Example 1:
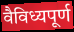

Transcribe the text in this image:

वैविध्यपूर्ण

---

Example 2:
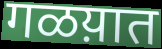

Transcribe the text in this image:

गळय़ात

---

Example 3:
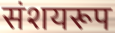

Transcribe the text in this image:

संशयरूप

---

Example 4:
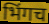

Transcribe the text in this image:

भिंगच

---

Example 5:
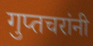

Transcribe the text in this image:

गुप्तचरांनी